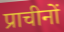
प्राचीनों